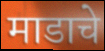
माडाचे